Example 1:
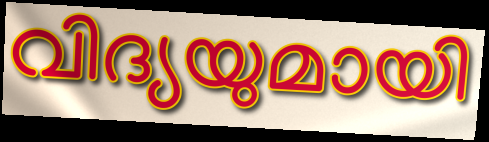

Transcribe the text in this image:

വിദ്യയുമായി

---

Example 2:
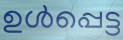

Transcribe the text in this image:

ഉൾപ്പെട്ട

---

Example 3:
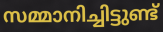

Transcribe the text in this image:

സമ്മാനിച്ചിട്ടുണ്ട്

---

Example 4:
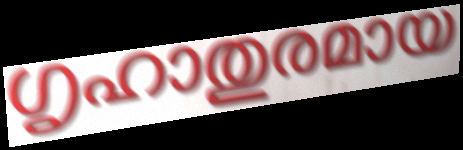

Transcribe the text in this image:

ഗൃഹാതുരമായ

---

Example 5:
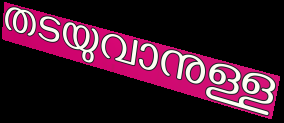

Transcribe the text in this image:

തടയുവാനുള്ള